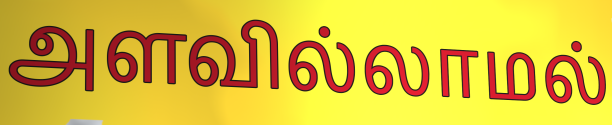
அளவில்லாமல்